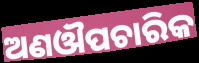
ଅଣଔପଚାରିକ